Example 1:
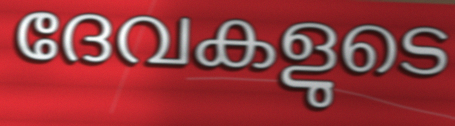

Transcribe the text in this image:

ദേവകളുടെ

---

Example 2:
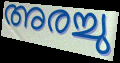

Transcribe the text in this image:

അരച്ചു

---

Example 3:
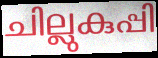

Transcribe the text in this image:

ചില്ലുകുപ്പി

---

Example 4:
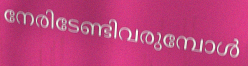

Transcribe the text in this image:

നേരിടേണ്ടിവരുമ്പോൾ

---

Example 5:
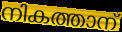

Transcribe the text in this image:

നികത്താന്